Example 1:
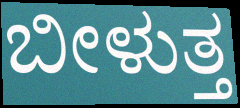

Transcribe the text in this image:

ಬೀಳುತ್ತ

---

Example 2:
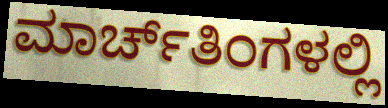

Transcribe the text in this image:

ಮಾರ್ಚ್‌ತಿಂಗಳಲ್ಲಿ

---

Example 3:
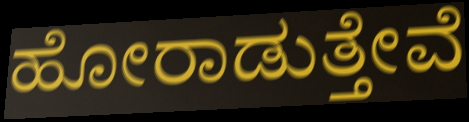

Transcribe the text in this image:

ಹೋರಾಡುತ್ತೇವೆ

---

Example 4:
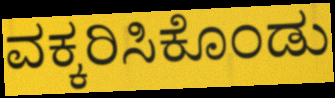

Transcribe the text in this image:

ವಕ್ಕರಿಸಿಕೊಂಡು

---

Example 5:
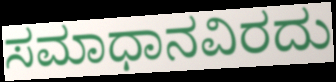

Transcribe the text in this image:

ಸಮಾಧಾನವಿರದು